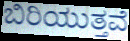
ಬಿರಿಯುತ್ತವೆ